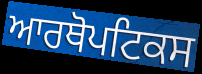
ਆਰਥੋਪਟਿਕਸ